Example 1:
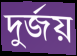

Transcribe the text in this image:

দুৰ্জয়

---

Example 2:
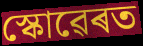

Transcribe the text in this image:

স্কোৱেৰত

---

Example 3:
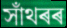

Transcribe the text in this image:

সাঁথৰৰ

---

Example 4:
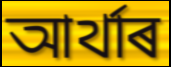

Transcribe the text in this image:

আৰ্থাৰ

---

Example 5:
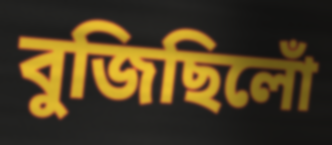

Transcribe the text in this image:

বুজিছিলোঁ